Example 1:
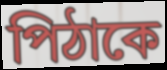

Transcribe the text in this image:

পিঠাকে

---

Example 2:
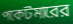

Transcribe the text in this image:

পকেটমারের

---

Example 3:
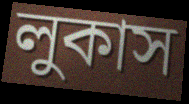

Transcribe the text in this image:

লুকাস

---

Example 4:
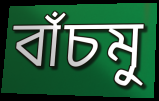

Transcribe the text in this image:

বাঁচমু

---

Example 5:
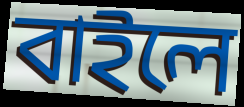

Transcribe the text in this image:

বাইলে